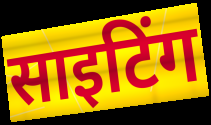
साइटिंग